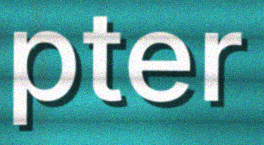
pter